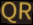
QR